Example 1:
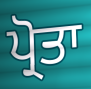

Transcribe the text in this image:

ਪ੍ਰੋਤਾ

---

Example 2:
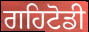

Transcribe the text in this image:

ਗਹਿਟੋਡੀ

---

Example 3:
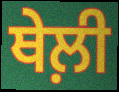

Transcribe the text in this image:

ਥੇਲ਼ੀ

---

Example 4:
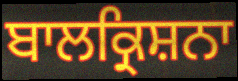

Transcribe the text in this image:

ਬਾਲਕ੍ਰਿਸ਼ਨਾ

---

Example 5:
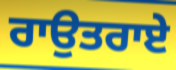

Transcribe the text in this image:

ਰਾਉਤਰਾਏ